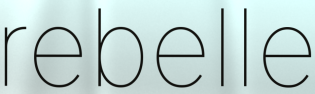
rebelle